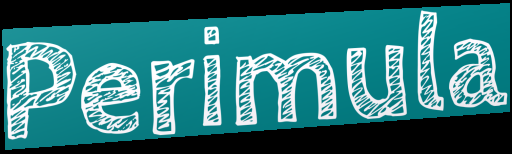
Perimula